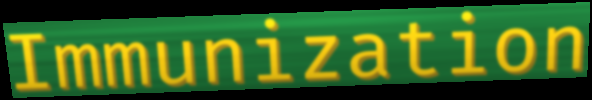
Immunization